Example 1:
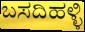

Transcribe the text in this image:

ಬಸದಿಹಳ್ಳಿ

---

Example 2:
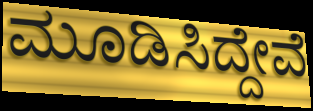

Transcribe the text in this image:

ಮೂಡಿಸಿದ್ದೇವೆ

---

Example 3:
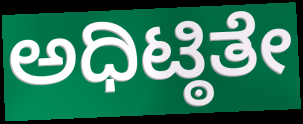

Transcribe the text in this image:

ಅಧಿಟ್ಠಿತೇ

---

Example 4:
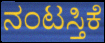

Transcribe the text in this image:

ನಂಟಸ್ತಿಕೆ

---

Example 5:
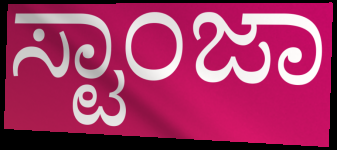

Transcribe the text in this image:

ಸ್ಟಾಂಜಾ